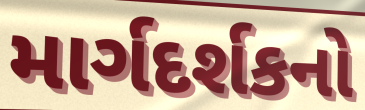
માર્ગદર્શકનો